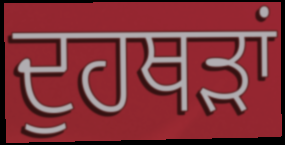
ਦੁਹਥੜਾਂ